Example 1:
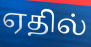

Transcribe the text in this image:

ஏதில்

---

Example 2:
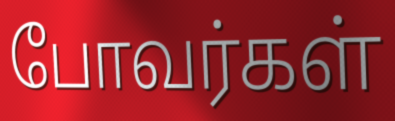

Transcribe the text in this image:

போவர்கள்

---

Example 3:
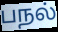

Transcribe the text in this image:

பநல்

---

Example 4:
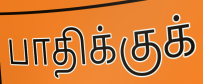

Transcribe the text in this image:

பாதிக்குக்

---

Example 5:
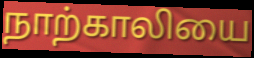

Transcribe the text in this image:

நாற்காலியை